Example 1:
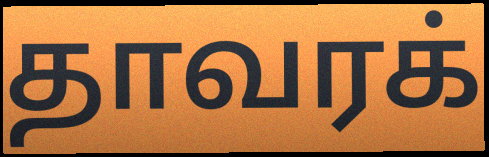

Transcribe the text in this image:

தாவரக்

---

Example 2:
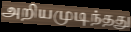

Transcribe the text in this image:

அறியமுடிந்தது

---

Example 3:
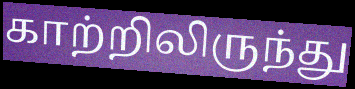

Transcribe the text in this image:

காற்றிலிருந்து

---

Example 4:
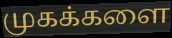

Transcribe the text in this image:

முகக்களை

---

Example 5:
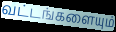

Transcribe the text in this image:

வட்டங்களையும்